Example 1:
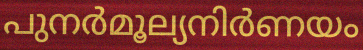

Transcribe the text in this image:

പുനർമൂല്യനിർണയം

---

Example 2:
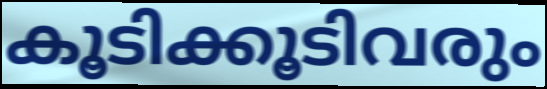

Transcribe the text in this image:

കൂടിക്കൂടിവരും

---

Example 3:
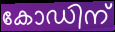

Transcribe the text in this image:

കോഡിന്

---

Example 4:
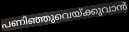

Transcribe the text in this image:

പണിഞ്ഞുവെയ്ക്കുവാൻ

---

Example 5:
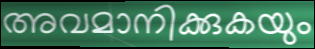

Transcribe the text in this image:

അവമാനിക്കുകയും